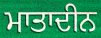
ਮਾਤਾਦੀਨ